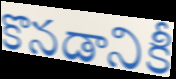
కొనడానికీ